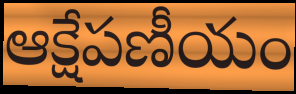
ఆక్షేపణీయం